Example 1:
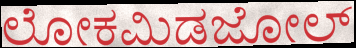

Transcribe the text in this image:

ಲೋಕಮಿಡಜೋಲ್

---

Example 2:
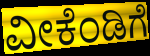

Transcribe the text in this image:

ವೀಕೆಂಡಿಗೆ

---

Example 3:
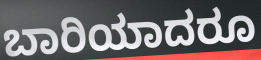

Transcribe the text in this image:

ಬಾರಿಯಾದರೂ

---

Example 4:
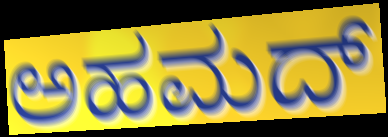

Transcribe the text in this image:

ಅಹಮದ್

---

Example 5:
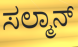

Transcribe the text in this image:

ಸಲ್ಮಾನ್